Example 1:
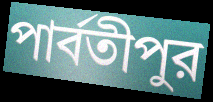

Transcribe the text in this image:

পার্বতীপুর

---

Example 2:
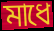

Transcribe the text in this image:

মাধে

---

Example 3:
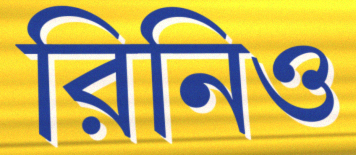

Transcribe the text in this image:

রিনিও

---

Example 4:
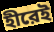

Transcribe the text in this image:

হীরেই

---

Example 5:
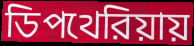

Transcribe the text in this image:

ডিপথেরিয়ায়